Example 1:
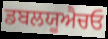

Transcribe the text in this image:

ਡਬਲਯੂਐਚਓ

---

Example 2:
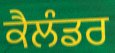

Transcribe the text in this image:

ਕੈਲੰਡਰ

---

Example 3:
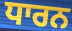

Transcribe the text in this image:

ਧਾਰਨ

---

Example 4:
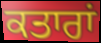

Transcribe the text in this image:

ਕਤਾਰਾਂ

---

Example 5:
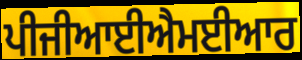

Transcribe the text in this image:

ਪੀਜੀਆਈਐਮਈਆਰ